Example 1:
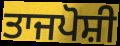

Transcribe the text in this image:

ਤਾਜਪੋਸ਼ੀ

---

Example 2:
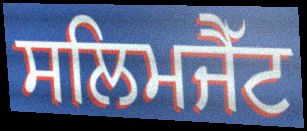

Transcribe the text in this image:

ਸਲਿਮਜੈੱਟ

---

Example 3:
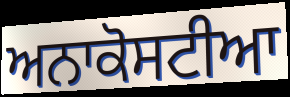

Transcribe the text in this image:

ਅਨਾਕੋਸਟੀਆ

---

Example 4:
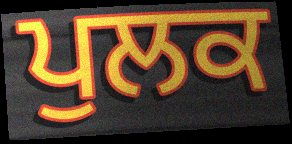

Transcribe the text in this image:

ਪੁਲਕ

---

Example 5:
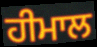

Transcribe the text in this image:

ਹੀਮਾਲ